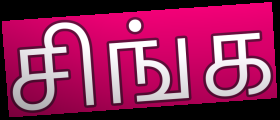
சிங்க